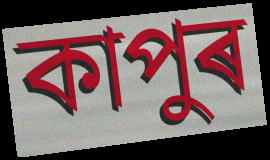
কাপুৰ